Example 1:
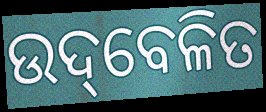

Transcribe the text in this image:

ଉଦ୍‌ବେଳିତ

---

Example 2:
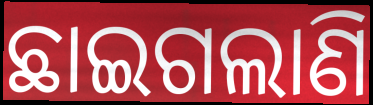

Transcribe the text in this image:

ଛାଇଗଲାଣି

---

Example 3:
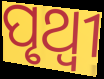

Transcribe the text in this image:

ପୃଥ୍ଵୀ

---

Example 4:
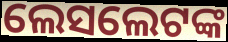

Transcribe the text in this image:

ଲେସଲେଟଙ୍କ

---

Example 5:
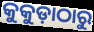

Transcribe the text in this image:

କୁକୁଡ଼ାଠାରୁ